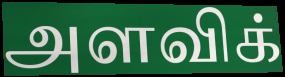
அளவிக்